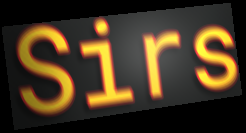
Sirs